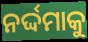
ନର୍ଦ୍ଦମାକୁ